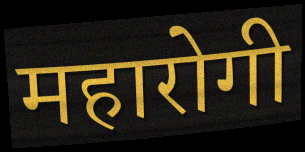
महारोगी